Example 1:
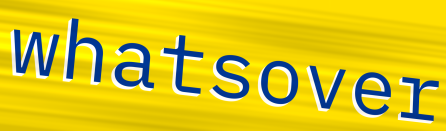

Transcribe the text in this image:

whatsover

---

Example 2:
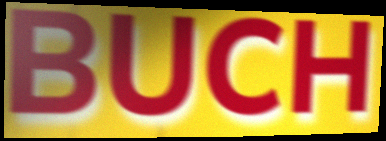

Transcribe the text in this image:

BUCH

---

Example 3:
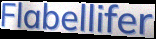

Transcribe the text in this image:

Flabellifer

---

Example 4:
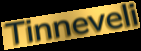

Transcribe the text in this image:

Tinneveli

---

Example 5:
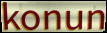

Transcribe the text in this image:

konun